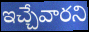
ఇచ్చేవారని